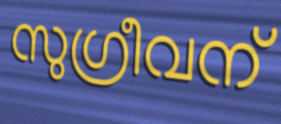
സുഗ്രീവന്